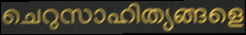
ചെറുസാഹിത്യങ്ങളെ